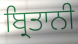
ਬ੍ਰਿਤਾਨੀ